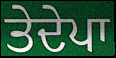
ਤੇਦੇਪਾ